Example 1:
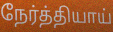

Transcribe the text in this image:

நேர்த்தியாய்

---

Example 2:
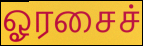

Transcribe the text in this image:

ஓரசைச்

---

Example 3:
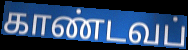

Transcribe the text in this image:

காண்டவப்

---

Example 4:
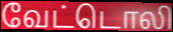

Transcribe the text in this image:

வேட்டொலி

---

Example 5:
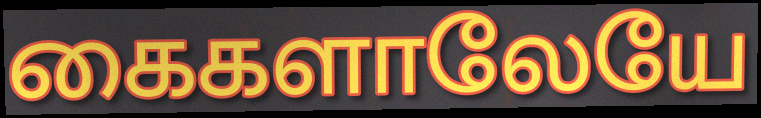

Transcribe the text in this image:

கைகளாலேயே